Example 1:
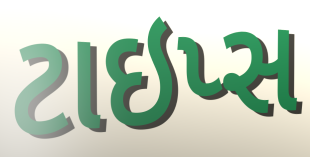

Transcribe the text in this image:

ટાઇપ્સ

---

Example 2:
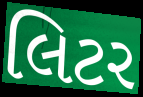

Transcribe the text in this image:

લિટર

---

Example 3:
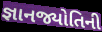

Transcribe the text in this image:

જ્ઞાનજ્યોતિની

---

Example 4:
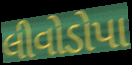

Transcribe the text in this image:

લીવોડોપા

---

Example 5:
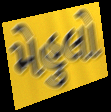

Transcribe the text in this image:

મેહુલો